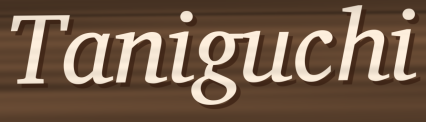
Taniguchi